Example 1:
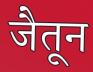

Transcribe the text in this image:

जैतून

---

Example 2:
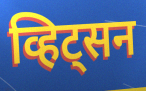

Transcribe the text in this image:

व्हिट्सन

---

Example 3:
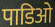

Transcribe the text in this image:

पाडिओ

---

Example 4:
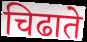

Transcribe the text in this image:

चिढाते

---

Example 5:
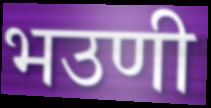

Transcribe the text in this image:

भउणी